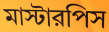
মাস্টারপিস